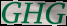
GHG